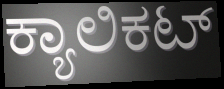
ಕ್ಯಾಲಿಕಟ್